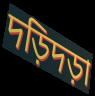
দড়িদড়া